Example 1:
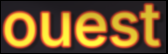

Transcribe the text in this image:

ouest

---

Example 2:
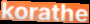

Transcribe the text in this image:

korathe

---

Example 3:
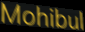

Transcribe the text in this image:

Mohibul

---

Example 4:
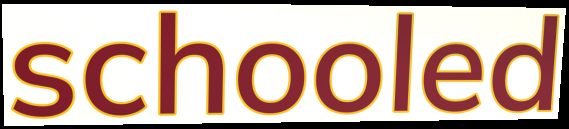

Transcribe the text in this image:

schooled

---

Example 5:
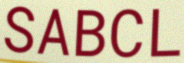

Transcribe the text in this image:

SABCL